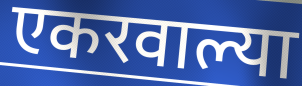
एकरवाल्या